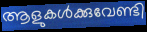
ആളുകൾക്കുവേണ്ടി